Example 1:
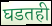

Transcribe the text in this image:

घडतही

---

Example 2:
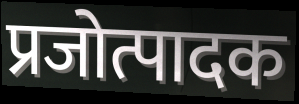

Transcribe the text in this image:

प्रजोत्पादक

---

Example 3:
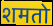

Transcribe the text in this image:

शमतो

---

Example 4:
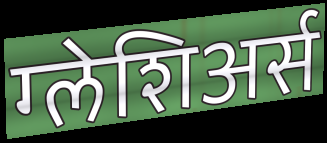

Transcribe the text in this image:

ग्लेशिअर्स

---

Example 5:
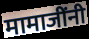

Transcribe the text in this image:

मामाजींनी